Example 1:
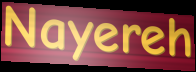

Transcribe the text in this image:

Nayereh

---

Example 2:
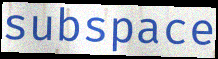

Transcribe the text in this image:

subspace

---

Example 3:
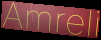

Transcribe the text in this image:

Amreli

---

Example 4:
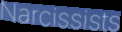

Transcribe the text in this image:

Narcissists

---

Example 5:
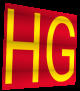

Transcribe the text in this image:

HG